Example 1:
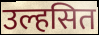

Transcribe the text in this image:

उल्हसित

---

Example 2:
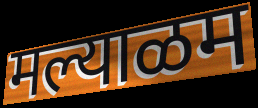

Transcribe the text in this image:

मल्याळम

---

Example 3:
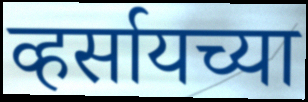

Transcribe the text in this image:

व्हर्सायच्या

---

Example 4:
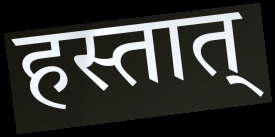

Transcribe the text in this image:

हस्तात्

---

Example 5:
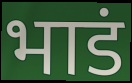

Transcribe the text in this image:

भाडं